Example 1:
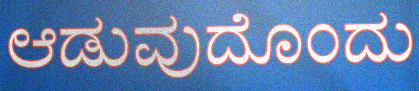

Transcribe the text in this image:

ಆಡುವುದೊಂದು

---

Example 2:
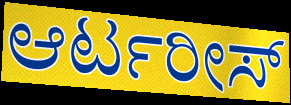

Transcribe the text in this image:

ಆರ್ಟರೀಸ್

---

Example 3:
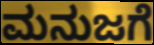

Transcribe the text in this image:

ಮನುಜಗೆ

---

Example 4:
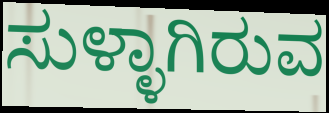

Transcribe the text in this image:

ಸುಳ್ಳಾಗಿರುವ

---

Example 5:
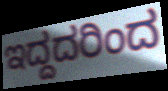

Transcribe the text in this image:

ಇದ್ದದರಿಂದ